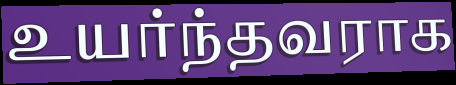
உயர்ந்தவராக